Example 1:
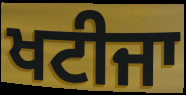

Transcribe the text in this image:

ਖਟੀਜਾ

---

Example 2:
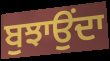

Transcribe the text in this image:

ਬੁਝਾਉਂਦਾ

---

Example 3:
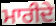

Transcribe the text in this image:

ਮਾਰੀਦੇ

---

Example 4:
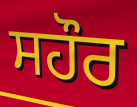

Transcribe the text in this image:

ਸਹੌਰ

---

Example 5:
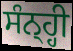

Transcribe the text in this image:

ਸੰਨ੍ਹ੍ਹੀ